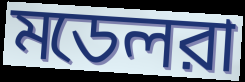
মডেলরা